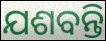
ଯଶବନ୍ତି